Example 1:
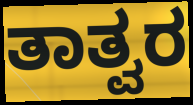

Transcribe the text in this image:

ತಾತ್ವರ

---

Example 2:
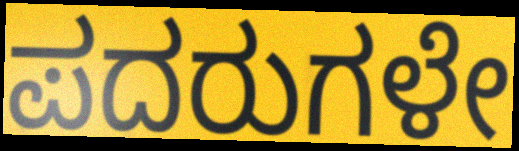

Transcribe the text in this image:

ಪದರುಗಳೇ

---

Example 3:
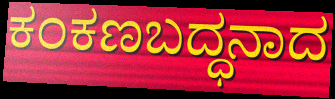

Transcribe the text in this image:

ಕಂಕಣಬದ್ಧನಾದ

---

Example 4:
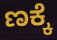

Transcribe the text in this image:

ಣಕ್ಕೆ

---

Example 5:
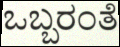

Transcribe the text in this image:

ಒಬ್ಬರಂತೆ